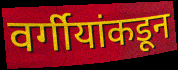
वर्गीयांकडून